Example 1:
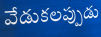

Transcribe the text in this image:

వేడుకలప్పుడు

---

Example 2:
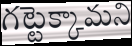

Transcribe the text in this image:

గట్టెక్కామని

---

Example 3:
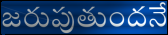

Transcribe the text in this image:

జరుపుతుందనే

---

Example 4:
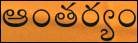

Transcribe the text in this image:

ఆంతర్యం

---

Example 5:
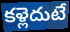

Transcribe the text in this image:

కళ్లెదుటే